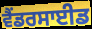
ਵੈਂਡਰਸਾਈਡ